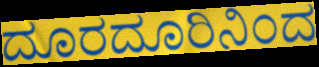
ದೂರದೂರಿನಿಂದ